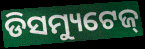
ଡିସମ୍ୟୁଟେଜ୍